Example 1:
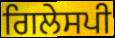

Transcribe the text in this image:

ਗਿਲੇਸਪੀ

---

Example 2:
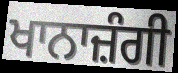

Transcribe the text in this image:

ਖਾਨਾਜ਼ੰਗੀ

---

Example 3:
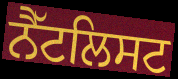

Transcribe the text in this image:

ਨੈੱਟਲਿਸਟ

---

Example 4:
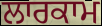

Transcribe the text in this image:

ਲਾਰਕਾਮ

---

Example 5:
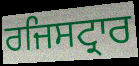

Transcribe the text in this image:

ਰਜਿਸਟ੍ਰਾਰ